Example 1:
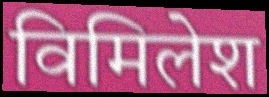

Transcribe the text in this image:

विमिलेश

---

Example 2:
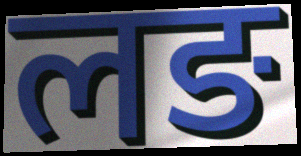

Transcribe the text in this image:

लङ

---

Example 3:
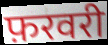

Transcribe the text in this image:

फ़रवरी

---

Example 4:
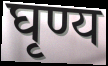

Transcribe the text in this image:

घृण्य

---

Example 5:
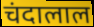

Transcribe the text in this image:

चंदालाल